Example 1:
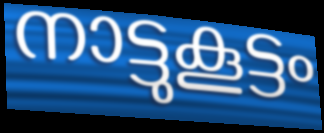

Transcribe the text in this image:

നാട്ടുകൂട്ടം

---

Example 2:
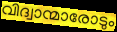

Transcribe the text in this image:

വിദ്വാന്മാരോടും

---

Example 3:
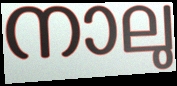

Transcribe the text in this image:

നാലു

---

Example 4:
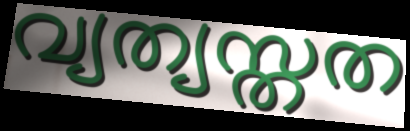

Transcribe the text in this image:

വ്യത്യസ്തത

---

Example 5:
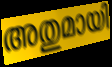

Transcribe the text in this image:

അതുമായി